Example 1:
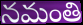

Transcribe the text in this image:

నమంతి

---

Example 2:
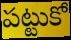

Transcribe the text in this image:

పట్టుకో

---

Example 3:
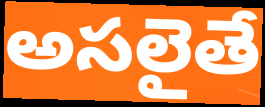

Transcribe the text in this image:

అసలైతే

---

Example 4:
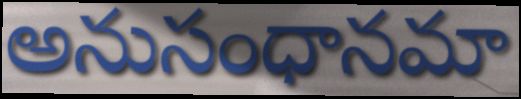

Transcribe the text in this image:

అనుసంధానమా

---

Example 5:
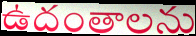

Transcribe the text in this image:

ఉదంతాలను